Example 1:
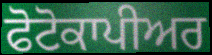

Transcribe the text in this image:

ਫੋਟੋਕਾਪੀਅਰ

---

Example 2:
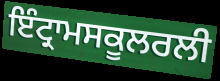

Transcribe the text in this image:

ਇੰਟ੍ਰਾਮਸਕੂਲਰਲੀ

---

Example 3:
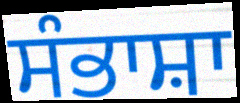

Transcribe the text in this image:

ਸੰਭਾਸ਼ਾ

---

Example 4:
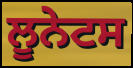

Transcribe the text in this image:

ਲੂਨੇਟਸ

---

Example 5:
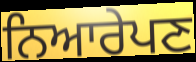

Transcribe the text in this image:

ਨਿਆਰੇਪਣ